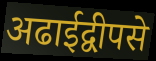
अढाईद्वीपसे